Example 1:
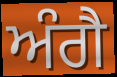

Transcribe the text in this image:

ਅੰਗੈ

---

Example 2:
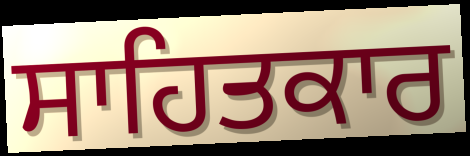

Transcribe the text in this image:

ਸਾਹਿਤਕਾਰ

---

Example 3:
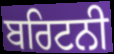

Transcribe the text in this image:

ਬਰਿਟਨੀ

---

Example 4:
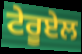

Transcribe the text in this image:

ਟੇਰੂਏਲ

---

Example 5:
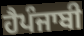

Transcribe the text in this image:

ਹੈਪੰਜਾਬੀ